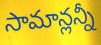
సామాన్లన్నీ